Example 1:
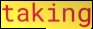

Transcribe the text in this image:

taking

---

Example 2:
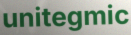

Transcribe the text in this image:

unitegmic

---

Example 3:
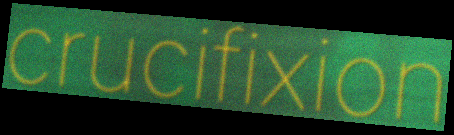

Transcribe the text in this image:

crucifixion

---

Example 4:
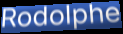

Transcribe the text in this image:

Rodolphe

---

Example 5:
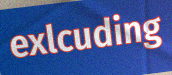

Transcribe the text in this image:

exlcuding